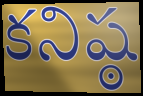
కనిష్ఠ